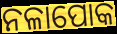
ନଳାପୋକ